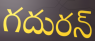
గదురన్